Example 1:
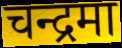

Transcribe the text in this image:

चन्द्रमा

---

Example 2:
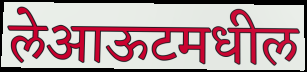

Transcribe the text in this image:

लेआऊटमधील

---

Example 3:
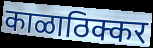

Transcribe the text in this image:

काळाठिक्कर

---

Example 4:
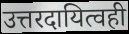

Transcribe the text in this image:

उत्तरदायित्वही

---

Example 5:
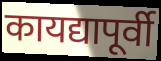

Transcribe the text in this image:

कायद्यापूर्वी